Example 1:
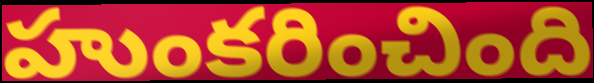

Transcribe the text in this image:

హుంకరించింది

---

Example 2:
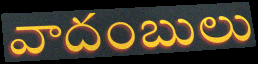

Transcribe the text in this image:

వాదంబులు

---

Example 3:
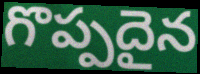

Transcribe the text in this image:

గొప్పదైన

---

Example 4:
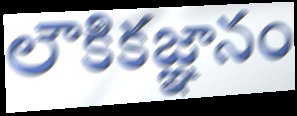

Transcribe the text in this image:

లౌకికజ్ఞానం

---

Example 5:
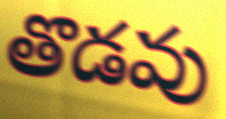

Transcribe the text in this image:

తొడవు